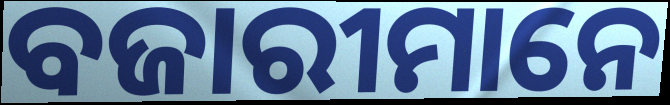
ବଜାରୀମାନେ